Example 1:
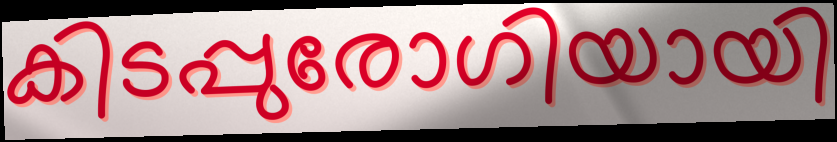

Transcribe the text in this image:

കിടപ്പുരോഗിയായി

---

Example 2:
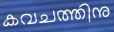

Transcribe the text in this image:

കവചത്തിനു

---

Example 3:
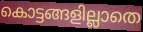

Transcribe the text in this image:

കൊട്ടങ്ങളില്ലാതെ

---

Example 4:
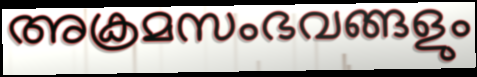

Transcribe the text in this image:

അക്രമസംഭവങ്ങളും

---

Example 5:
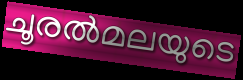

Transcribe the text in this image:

ചൂരൽമലയുടെ